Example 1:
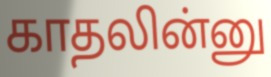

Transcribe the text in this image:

காதலின்னு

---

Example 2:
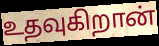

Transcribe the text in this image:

உதவுகிறான்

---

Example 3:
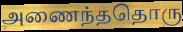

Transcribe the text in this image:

அணைந்ததொரு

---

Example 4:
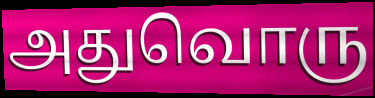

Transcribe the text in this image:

அதுவொரு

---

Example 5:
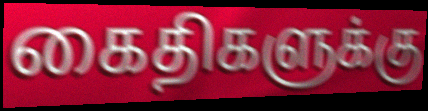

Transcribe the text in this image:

கைதிகளுக்கு